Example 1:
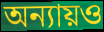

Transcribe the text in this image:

অন্যায়ও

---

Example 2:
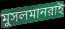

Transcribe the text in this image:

মুসলমানরাই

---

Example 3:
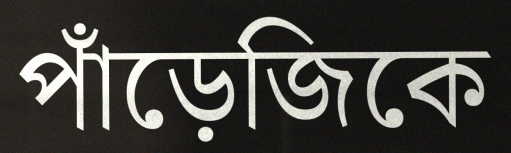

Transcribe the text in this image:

পাঁড়েজিকে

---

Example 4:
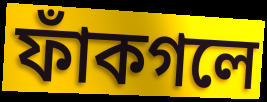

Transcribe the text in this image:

ফাঁকগলে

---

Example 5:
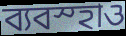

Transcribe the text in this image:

ব্যবস্হাও